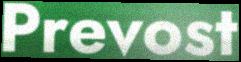
Prevost